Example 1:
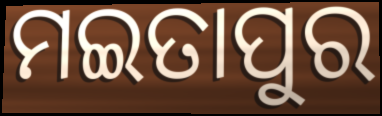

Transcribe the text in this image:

ମଇତାପୁର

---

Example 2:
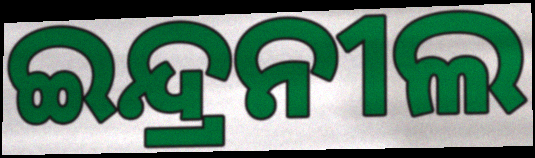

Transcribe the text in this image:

ଇନ୍ଦ୍ରନୀଲ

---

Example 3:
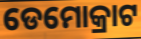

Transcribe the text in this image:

ଡେମୋକ୍ରାଟ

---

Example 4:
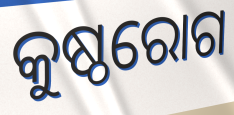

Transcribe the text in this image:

କୁଷ୍ଠରୋଗ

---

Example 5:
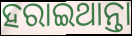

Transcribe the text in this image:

ହରାଇଥାନ୍ତା